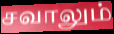
சவாலும்